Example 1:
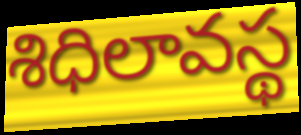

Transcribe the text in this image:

శిధిలావస్థ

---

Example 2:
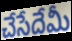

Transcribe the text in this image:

చేసేదేమీ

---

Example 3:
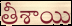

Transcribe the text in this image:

తీశాయి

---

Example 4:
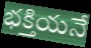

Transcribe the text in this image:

భక్తియనే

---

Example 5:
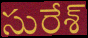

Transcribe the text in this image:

సురేశ్